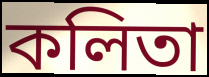
কলিতা